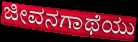
ಜೀವನಗಾಥೆಯು